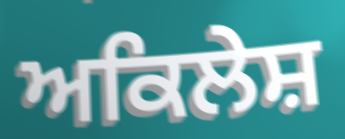
ਅਕਿਲੇਸ਼